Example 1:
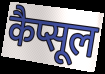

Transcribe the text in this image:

कैप्सूल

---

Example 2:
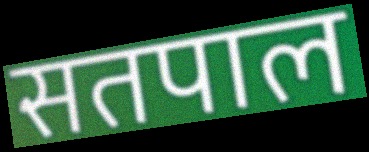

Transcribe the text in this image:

सतपाल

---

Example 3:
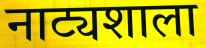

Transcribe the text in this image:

नाट्यशाला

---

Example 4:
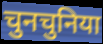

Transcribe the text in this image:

चुनचुनिया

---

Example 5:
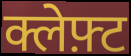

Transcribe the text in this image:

क्लेफ़्ट